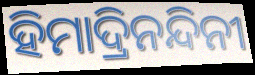
ହିମାଦ୍ରିନନ୍ଦିନୀ